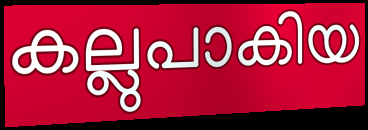
കല്ലുപാകിയ